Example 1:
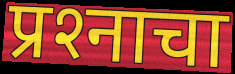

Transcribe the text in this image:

प्रश्नाचा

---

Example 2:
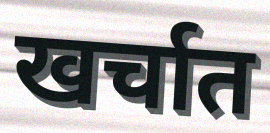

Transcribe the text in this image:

खर्चात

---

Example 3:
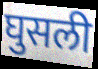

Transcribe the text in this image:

घुसली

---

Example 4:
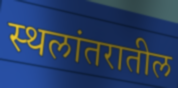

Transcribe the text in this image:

स्थलांतरातील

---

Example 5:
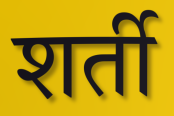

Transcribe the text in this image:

शर्ती